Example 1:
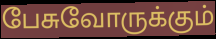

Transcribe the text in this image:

பேசுவோருக்கும்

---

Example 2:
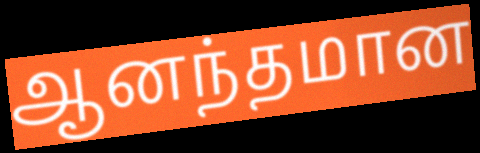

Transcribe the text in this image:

ஆனந்தமான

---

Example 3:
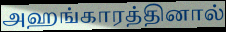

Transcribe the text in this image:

அஹங்காரத்தினால்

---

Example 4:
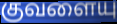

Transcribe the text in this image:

குவளையு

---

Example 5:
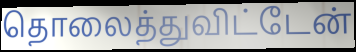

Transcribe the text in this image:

தொலைத்துவிட்டேன்